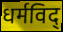
धर्मविद्